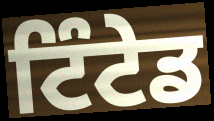
ਟਿੰਟੇਡ